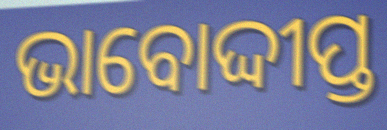
ଭାବୋଦ୍ଦୀପ୍ତ